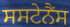
ਸਸਟੇਨੈਂਸ